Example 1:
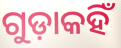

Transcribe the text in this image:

ଗୁଡ଼ାକହିଁ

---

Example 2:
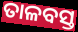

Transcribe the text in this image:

ତାଳବସ୍ତ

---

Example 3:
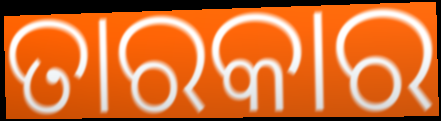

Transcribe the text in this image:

ତାରକାର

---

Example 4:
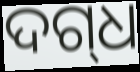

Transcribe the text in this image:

ଦଗ୍‌ଧ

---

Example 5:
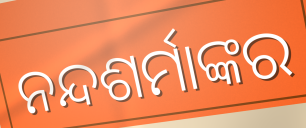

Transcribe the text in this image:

ନନ୍ଦଶର୍ମାଙ୍କର